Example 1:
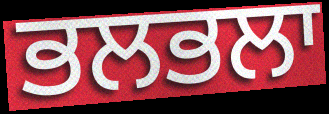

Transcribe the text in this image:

ਭਲਭਲਾ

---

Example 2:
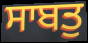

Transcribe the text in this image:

ਸਾਬਤੁ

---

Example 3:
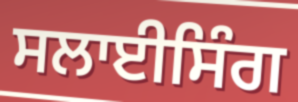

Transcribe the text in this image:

ਸਲਾਈਸਿੰਗ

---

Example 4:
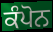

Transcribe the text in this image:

ਕੰਪੋਨ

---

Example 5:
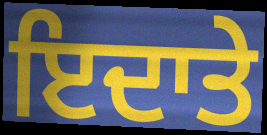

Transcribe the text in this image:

ਇਦਾਤੇ